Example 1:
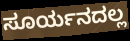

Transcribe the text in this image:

ಸೂರ್ಯನದಲ್ಲ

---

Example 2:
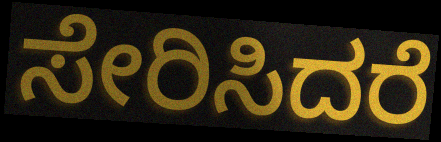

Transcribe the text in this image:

ಸೇರಿಸಿದರೆ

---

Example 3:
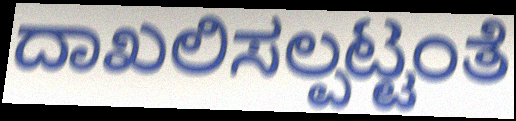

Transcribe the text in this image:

ದಾಖಲಿಸಲ್ಪಟ್ಟಂತೆ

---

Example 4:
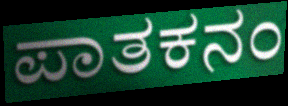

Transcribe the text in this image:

ಪಾತಕನಂ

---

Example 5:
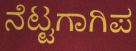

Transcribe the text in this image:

ನೆಟ್ಟಗಾಗಿಪ